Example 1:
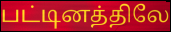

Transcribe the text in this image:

பட்டினத்திலே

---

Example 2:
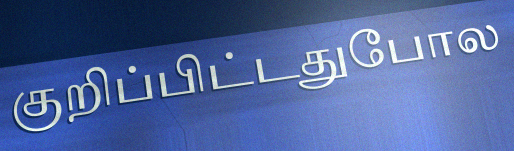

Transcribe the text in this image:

குறிப்பிட்டதுபோல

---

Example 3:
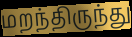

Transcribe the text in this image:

மறந்திருந்து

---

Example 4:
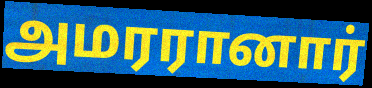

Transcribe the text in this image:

அமரரானார்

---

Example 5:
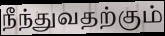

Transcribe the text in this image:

நீந்துவதற்கும்